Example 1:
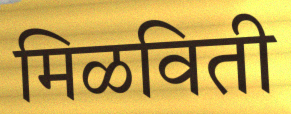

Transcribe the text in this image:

मिळविती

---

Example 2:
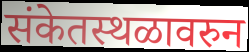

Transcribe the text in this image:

संकेतस्थळावरुन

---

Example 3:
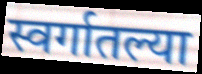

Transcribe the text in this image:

स्वर्गातल्या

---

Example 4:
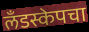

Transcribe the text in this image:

लँडस्केपचा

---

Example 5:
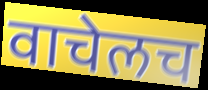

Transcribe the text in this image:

वाचेलच